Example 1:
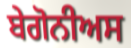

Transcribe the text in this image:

ਬੇਗੋਨੀਅਸ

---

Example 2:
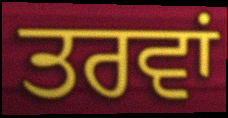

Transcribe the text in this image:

ਤਰਵਾਂ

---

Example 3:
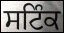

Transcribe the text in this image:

ਸਟਿੰਕ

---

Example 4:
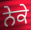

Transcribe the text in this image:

ਨੇਕੇ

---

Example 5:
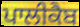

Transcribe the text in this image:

ਪਾਲੀਕੈਬ